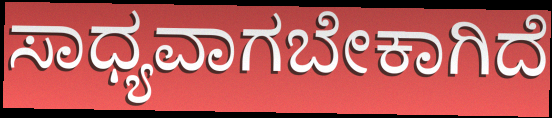
ಸಾಧ್ಯವಾಗಬೇಕಾಗಿದೆ